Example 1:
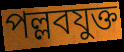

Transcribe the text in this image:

পল্লবযুক্ত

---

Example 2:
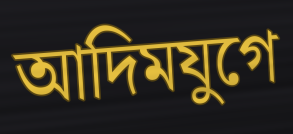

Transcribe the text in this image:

আদিমযুগে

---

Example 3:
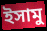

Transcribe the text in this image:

ইসামু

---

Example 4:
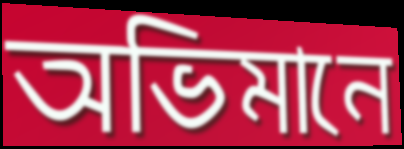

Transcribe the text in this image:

অভিমানে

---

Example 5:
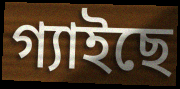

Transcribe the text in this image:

গ্যাইছে